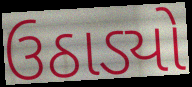
ઉઠાડ્યો